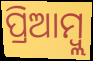
ପ୍ରିଆମ୍ବ୍ଲ